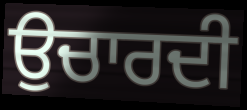
ਉਚਾਰਦੀ